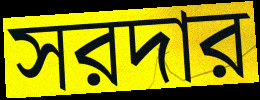
সরদার